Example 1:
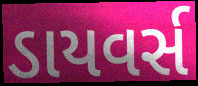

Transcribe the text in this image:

ડાયવર્સ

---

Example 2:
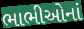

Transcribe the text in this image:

ભાભીઓનાં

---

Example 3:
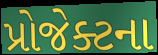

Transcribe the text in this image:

પ્રોજેક્ટના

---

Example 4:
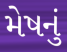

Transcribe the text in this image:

મેષનું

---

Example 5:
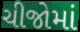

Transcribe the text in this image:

ચીજોમાં